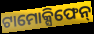
ଟାମୋକ୍ସିଫେନ୍